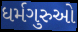
ધર્મગુરુઓ